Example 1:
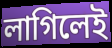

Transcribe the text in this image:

লাগিলেই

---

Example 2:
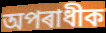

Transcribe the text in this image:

অপৰাধীক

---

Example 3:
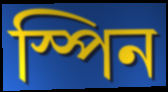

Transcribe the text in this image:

স্পিন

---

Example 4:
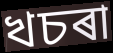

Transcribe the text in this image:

খচৰা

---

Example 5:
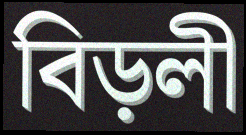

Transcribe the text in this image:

বিড়লী